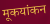
मूकयांकन